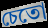
চেতো